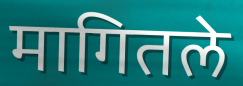
मागितले